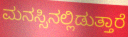
ಮನಸ್ಸಿನಲ್ಲಿಡುತ್ತಾರೆ